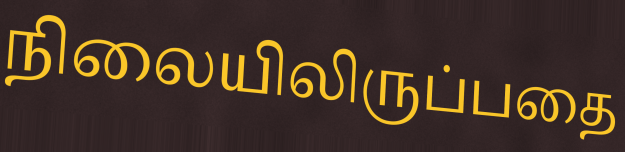
நிலையிலிருப்பதை